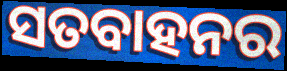
ସତବାହନର